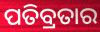
ପତିବ୍ରତାର